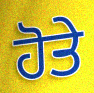
ਹੋਤੇ